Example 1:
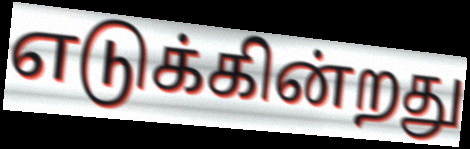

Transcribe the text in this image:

எடுக்கின்றது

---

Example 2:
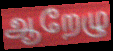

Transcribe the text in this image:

ஆறேழு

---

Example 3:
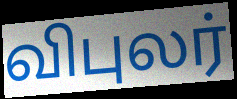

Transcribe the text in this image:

விபுலர்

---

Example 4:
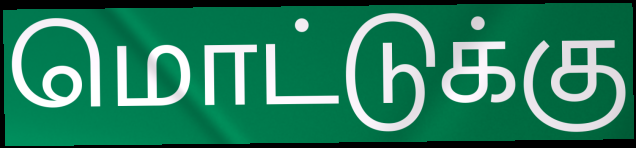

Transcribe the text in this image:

மொட்டுக்கு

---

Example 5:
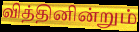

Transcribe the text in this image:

வித்தினின்றும்